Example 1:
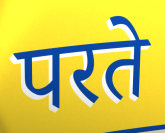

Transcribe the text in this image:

परते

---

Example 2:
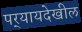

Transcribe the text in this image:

पर्यायदेखील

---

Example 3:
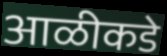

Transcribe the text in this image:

आळीकडे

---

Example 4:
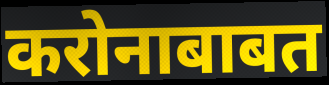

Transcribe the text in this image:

करोनाबाबत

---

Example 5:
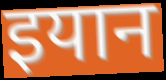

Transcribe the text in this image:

इयान